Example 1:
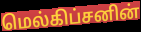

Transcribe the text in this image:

மெல்கிப்சனின்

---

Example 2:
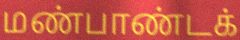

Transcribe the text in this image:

மண்பாண்டக்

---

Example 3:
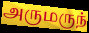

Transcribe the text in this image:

அருமருந்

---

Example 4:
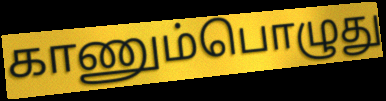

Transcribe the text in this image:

காணும்பொழுது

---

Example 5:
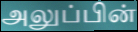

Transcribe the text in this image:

அலுப்பின்